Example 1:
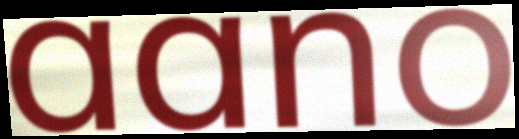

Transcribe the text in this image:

aano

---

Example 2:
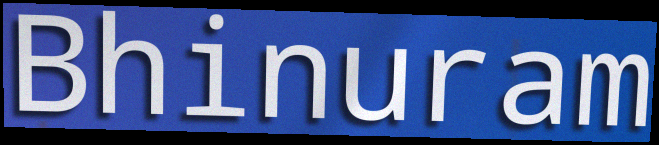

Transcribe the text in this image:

Bhinuram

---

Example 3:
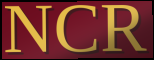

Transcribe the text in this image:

NCR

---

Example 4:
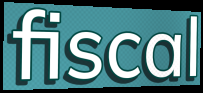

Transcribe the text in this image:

fiscal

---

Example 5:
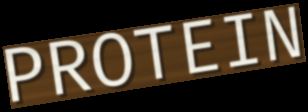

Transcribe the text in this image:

PROTEIN